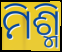
ମିଶ୍ମି